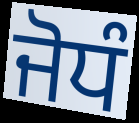
ਜੋਧੰ